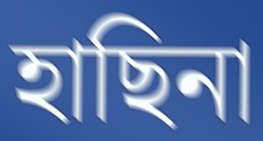
হাছিনা